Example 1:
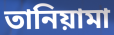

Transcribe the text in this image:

তানিয়ামা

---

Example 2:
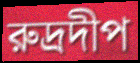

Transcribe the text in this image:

রুদ্রদীপ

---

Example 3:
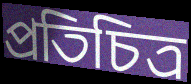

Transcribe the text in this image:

প্রতিচিত্র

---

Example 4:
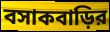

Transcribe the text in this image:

বসাকবাড়ির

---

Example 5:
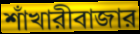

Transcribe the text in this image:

শাঁখারীবাজার